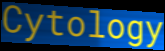
Cytology